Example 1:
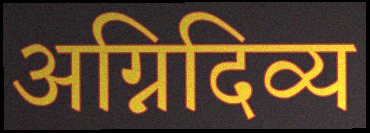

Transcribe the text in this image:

अग्निदिव्य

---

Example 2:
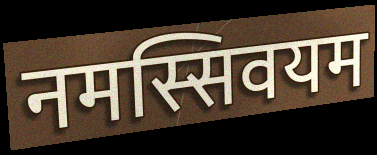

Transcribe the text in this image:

नमस्सिवयम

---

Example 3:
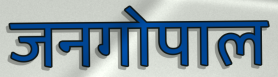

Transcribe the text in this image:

जनगोपाल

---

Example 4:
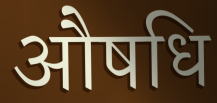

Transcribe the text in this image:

औषधि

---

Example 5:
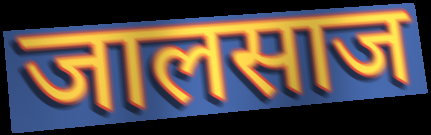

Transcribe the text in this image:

जालसाज